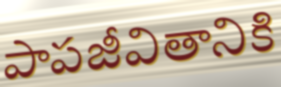
పాపజీవితానికి